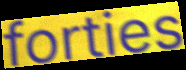
forties